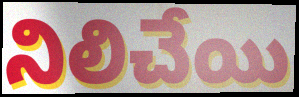
నిలిచేయి